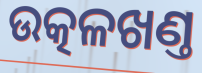
ଉତ୍କଳଖଣ୍ତ